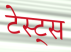
टेस्ट्स